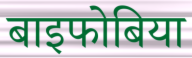
बाइफोबिया